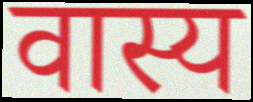
वास्य